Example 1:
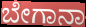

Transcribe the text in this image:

ಬೇಗಾನಾ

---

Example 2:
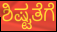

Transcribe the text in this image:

ಶಿಷ್ಟತೆಗೆ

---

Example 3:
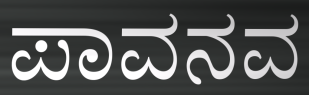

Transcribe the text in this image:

ಪಾವನವ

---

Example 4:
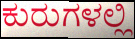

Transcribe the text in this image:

ಕುರುಗಳಲ್ಲಿ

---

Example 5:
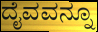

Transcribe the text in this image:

ದೈವವನ್ನೂ